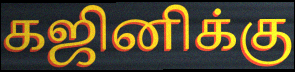
கஜினிக்கு